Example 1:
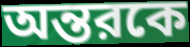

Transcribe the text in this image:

অন্তরকে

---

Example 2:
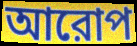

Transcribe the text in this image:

আরোপ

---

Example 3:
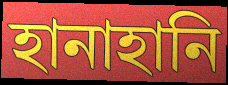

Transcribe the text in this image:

হানাহানি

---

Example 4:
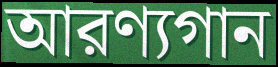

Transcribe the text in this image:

আরণ্যগান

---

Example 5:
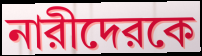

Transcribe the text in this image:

নারীদেরকে